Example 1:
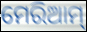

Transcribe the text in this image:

ମେରିଆମ୍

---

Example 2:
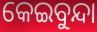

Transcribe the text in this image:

କେଇବୁନ୍ଦା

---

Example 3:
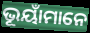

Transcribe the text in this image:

ଭୂୟାଁମାନେ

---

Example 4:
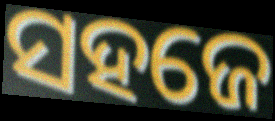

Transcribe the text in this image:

ସହଜେ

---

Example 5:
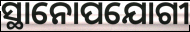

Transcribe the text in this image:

ସ୍ଥାନୋପଯୋଗୀ